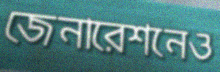
জেনারেশনেও